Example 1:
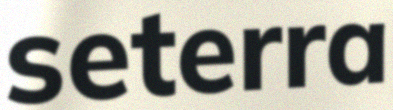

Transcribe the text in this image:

seterra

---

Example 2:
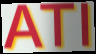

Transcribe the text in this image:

ATI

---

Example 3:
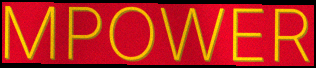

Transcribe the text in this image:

MPOWER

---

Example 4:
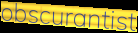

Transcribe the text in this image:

obscurantist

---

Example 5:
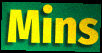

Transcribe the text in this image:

Mins